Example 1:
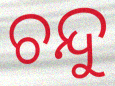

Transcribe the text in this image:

ଚନ୍ଦୁ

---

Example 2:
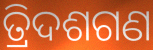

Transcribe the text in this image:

ତ୍ରିଦଶଗଣ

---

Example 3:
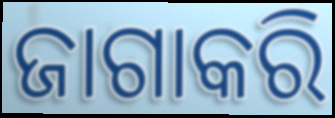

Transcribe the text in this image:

ଜାଗାକରି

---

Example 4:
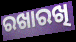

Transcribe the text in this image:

ରଖାରଖି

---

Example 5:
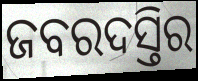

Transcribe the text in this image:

ଜବରଦସ୍ତିର